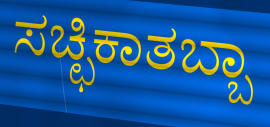
ಸಚ್ಛಿಕಾತಬ್ಬಾ